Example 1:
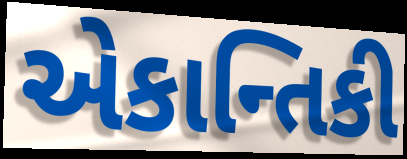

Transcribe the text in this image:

એકાન્તિકી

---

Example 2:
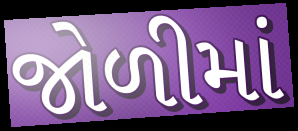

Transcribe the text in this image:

જોળીમાં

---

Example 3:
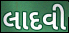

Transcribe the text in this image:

લાદવી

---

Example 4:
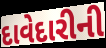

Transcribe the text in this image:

દાવેદારીની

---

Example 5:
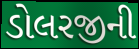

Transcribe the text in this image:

ડોલરજીની